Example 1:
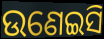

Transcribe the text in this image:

ଉଣେଇସି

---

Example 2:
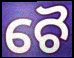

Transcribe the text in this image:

ଚୈ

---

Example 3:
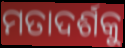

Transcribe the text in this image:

ମତାଦର୍ଶକୁ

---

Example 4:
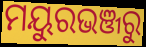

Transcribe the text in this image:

ମୟୁରଭଞ୍ଜରୁ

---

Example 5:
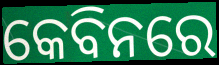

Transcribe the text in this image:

କେବିନରେ